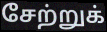
சேற்றுக்